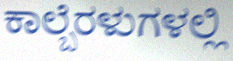
ಕಾಲ್ಬೆರಳುಗಳಲ್ಲಿ